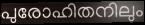
പുരോഹിതനിലും